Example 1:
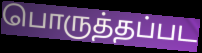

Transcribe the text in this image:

பொருத்தப்பட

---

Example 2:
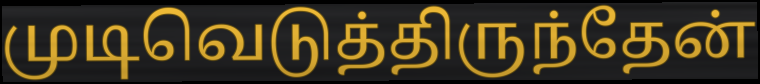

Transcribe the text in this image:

முடிவெடுத்திருந்தேன்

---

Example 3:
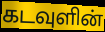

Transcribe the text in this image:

கடவுளின்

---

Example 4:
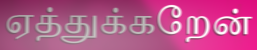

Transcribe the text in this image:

ஏத்துக்கறேன்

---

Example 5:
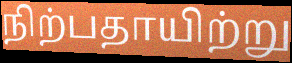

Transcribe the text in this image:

நிற்பதாயிற்று